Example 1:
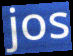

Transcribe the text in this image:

jos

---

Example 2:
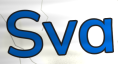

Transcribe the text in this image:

Sva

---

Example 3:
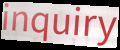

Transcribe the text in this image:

inquiry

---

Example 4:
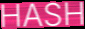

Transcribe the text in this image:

HASH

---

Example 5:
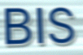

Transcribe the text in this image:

BIS